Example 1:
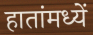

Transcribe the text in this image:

हातांमध्यें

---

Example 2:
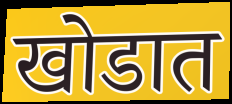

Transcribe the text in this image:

खोडात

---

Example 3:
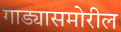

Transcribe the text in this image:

गाड्यासमोरील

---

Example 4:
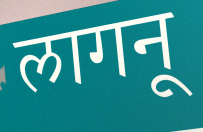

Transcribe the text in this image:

लागनू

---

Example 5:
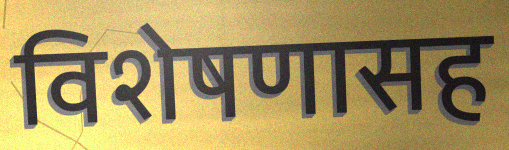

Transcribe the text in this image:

विशेषणासह